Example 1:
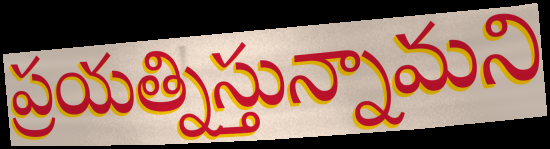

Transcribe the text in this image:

ప్రయత్నిస్తున్నామని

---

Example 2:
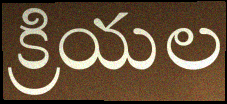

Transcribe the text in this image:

క్రియల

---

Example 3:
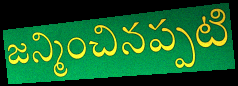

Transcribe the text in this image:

జన్మించినప్పటి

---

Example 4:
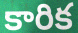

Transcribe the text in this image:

కారిక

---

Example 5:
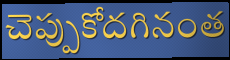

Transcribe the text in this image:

చెప్పుకోదగినంత